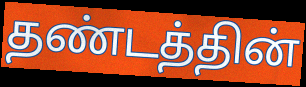
தண்டத்தின்